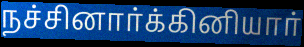
நச்சினார்க்கினியார்